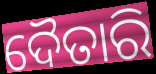
ଦୈତାରି